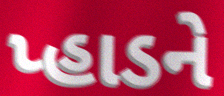
પ્હાડને